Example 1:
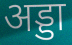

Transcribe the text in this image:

अड्डा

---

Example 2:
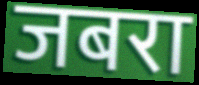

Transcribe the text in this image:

जबरा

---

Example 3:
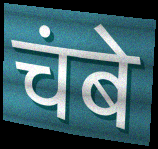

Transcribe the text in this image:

चंबे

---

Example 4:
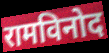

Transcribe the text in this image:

रामविनोद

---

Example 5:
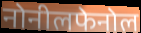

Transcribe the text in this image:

नोनीलफेनोल